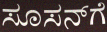
ಸೂಸನ್‌ಗೆ